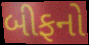
બીફનો